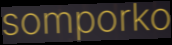
somporko